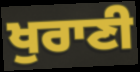
ਖੁਰਾਣੀ